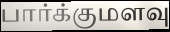
பார்க்குமளவு